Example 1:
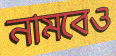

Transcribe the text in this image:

নামবেও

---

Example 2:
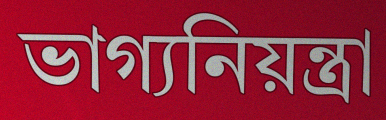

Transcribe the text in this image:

ভাগ্যনিয়ন্ত্রা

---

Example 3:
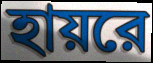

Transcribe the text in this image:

হায়রে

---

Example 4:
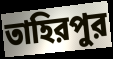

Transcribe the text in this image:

তাহিরপুর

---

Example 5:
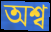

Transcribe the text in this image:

অশ্ব